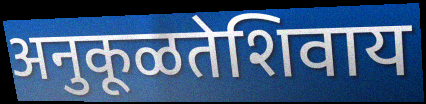
अनुकूळतेशिवाय